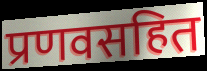
प्रणवसहित